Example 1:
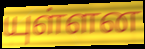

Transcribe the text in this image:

யுள்ளன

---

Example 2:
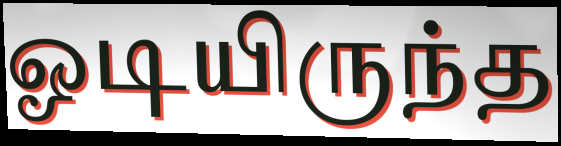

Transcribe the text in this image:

ஓடியிருந்த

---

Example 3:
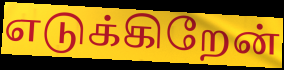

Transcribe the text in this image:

எடுக்கிறேன்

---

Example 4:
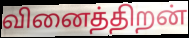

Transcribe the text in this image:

வினைத்திறன்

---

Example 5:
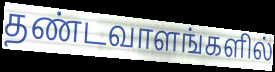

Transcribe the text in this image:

தண்டவாளங்களில்